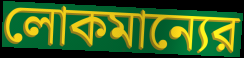
লোকমান্যের